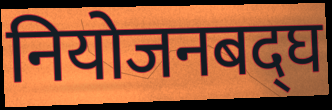
नियोजनबद्घ